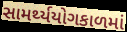
સામર્થ્યયોગકાળમાં